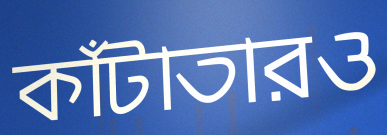
কাঁটাতারও